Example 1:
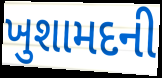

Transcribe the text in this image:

ખુશામદની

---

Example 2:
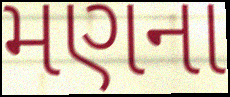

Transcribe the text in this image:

મણના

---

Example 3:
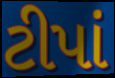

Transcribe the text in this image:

ટીપાં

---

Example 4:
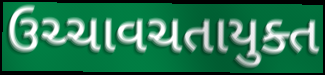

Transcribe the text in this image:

ઉચ્ચાવચતાયુક્ત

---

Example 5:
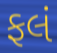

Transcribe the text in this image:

ફલં